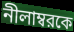
নীলাম্বরকে